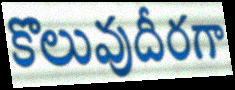
కొలువుదీరగా